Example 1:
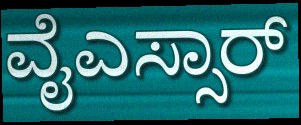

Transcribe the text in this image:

ವೈಎಸ್ಸಾರ್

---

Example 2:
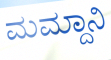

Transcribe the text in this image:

ಮಮ್ದಾನಿ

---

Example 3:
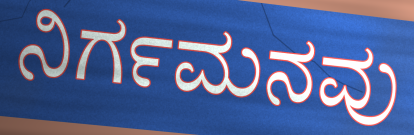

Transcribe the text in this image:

ನಿರ್ಗಮನವು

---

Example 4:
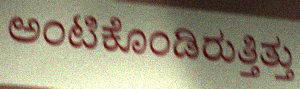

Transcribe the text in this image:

ಅಂಟಿಕೊಂಡಿರುತ್ತಿತ್ತು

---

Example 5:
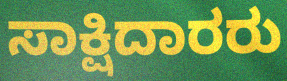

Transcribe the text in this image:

ಸಾಕ್ಷಿದಾರರು